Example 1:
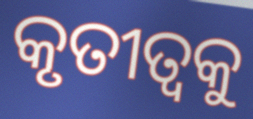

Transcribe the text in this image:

କୃତୀତ୍ଵକୁ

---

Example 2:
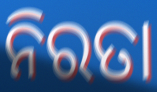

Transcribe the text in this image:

ନିରତା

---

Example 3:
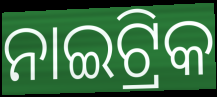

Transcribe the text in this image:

ନାଇଟ୍ରିକ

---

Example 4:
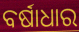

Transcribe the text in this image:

ବର୍ଷାଧାର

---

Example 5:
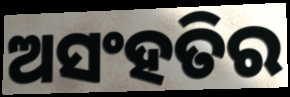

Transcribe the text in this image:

ଅସଂହତିର